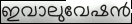
ഇവാലുവേഷൻ